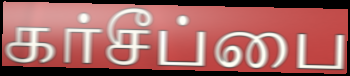
கர்சீப்பை